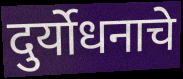
दुर्योधनाचे